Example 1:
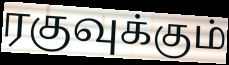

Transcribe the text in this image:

ரகுவுக்கும்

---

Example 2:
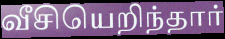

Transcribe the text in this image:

வீசியெறிந்தார்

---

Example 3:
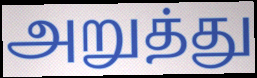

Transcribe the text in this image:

அறுத்து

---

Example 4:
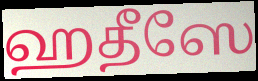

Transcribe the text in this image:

ஹதீஸே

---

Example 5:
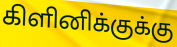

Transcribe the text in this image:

கிளினிக்குக்கு